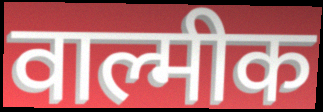
वाल्मीक